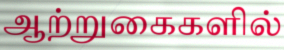
ஆற்றுகைகளில்